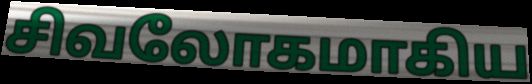
சிவலோகமாகிய